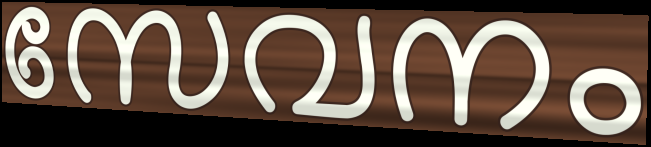
സേവനം